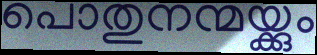
പൊതുനന്മയ്ക്കും